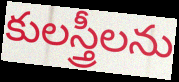
కులస్త్రీలను